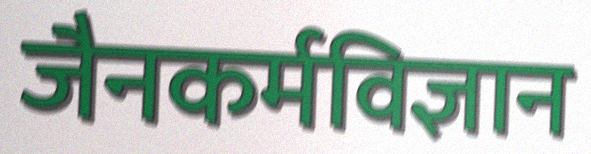
जैनकर्मविज्ञान